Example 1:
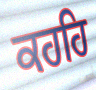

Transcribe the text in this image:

ਕਹਹਿ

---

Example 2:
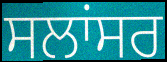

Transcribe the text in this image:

ਸਲਾਂਸਰ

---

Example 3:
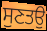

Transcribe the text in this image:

ਸੁਣਤਉ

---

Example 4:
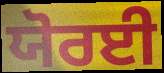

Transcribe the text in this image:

ਯੋਰਈ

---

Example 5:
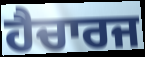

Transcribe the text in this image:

ਹੈਚਾਰਜ